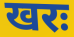
खरः